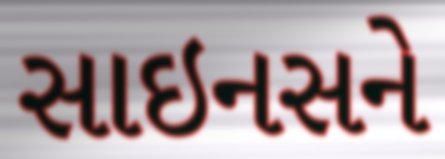
સાઇનસને